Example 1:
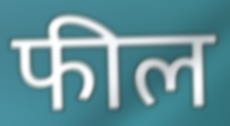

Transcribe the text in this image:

फील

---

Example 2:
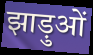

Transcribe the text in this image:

झाड़ुओं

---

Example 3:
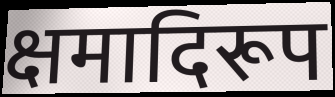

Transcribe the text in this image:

क्षमादिरूप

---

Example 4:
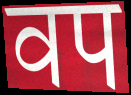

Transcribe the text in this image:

वप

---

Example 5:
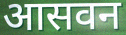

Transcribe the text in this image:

आसवन